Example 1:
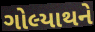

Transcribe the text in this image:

ગોલ્યાથને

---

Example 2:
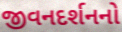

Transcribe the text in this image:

જીવનદર્શનનો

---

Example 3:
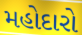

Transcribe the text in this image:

મહોદારો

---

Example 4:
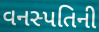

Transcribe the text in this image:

વનસ્પતિની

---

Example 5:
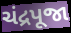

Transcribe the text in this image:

ચંદ્રપૂજા